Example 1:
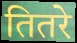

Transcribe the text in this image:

तितरे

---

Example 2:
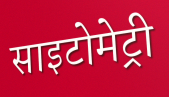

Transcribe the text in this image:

साइटोमेट्री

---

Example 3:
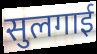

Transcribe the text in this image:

सुलगाई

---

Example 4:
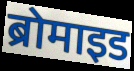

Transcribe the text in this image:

ब्रोमाइड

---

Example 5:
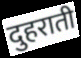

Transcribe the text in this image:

दुहराती